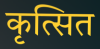
कृत्सित